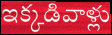
ఇక్కడివాళ్లు